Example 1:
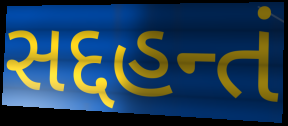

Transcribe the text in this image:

સદ્દહન્તં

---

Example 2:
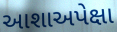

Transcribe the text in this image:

આશાઅપેક્ષા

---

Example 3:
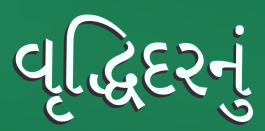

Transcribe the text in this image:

વૃદ્ધિદરનું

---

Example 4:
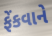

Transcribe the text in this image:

ફેંકવાને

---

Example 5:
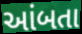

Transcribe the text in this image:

આંબતા